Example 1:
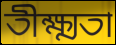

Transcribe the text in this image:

তীক্ষ্মতা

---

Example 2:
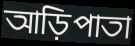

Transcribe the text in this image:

আড়িপাতা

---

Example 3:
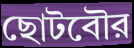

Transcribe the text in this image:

ছোটবৌর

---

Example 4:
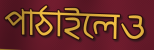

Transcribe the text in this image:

পাঠাইলেও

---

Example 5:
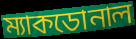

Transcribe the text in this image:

ম্যাকডোনাল